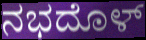
ನಭದೊಳ್